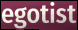
egotist